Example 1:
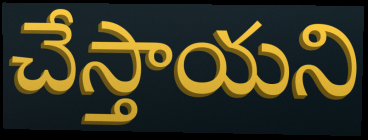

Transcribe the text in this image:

చేస్తాయని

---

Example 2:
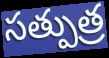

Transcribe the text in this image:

సత్పుత్ర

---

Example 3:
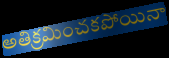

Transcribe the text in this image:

అతిక్రమించకపోయినా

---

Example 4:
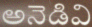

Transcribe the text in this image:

అనెడివి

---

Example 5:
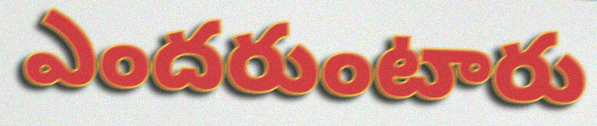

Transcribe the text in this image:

ఎందరుంటారు